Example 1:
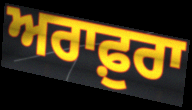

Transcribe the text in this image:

ਅਰਾਫ਼ੁਰਾ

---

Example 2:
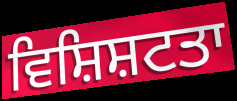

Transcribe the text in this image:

ਵਿਸ਼ਿਸ਼ਟਤਾ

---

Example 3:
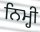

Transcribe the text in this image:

ਨਿਮ੍ਹੀ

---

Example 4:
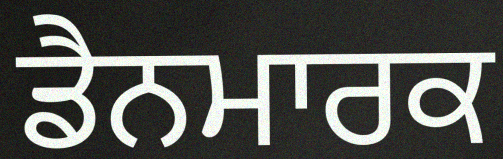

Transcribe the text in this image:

ਡੈਨਮਾਰਕ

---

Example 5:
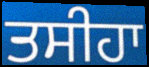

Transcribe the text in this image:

ਤਸੀਹਾ